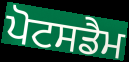
ਪੋਟਸਡੈਮ